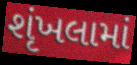
શૃંખલામાં